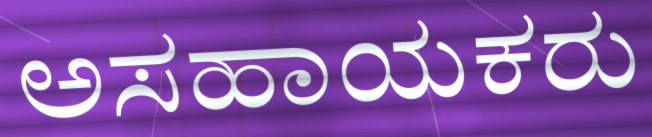
ಅಸಹಾಯಕರು